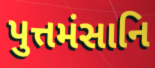
પુત્તમંસાનિ